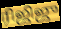
ரிஜிஜு